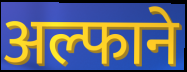
अल्फाने